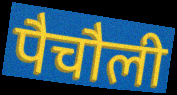
पैचौली